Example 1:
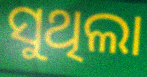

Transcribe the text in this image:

ସୁଥିଲା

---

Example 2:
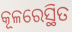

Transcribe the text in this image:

କୂଳରେସ୍ଥିତ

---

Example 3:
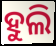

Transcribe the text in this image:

ହୁଲି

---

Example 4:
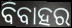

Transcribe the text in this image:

ବିବାହର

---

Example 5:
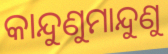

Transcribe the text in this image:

କାନ୍ଦୁଣୁମାନ୍ଦୁଣୁ